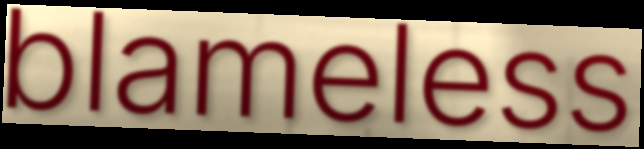
blameless